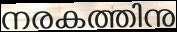
നരകത്തിനു